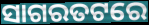
ସାଗରତଟରେ